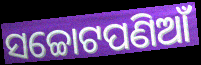
ସଚ୍ଚୋଟପଣିଆଁ